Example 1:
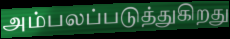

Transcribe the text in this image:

அம்பலப்படுத்துகிறது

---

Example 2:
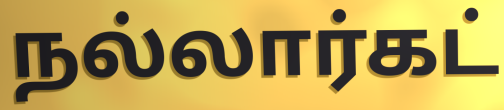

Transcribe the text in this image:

நல்லார்கட்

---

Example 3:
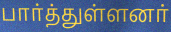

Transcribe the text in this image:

பார்த்துள்ளனர்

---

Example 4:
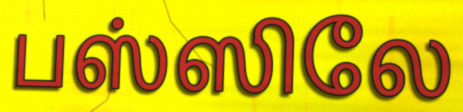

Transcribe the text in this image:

பஸ்ஸிலே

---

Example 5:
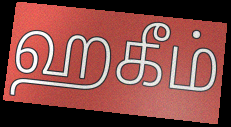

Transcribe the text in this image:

ஹகீம்